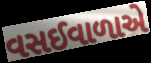
વસઈવાળાએ